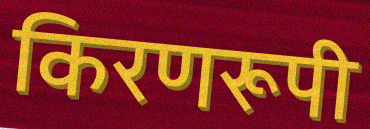
किरणरूपी